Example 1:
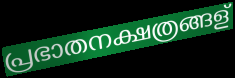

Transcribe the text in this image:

പ്രഭാതനക്ഷത്രങ്ങള്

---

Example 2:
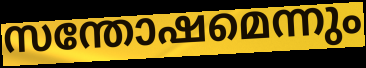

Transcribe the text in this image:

സന്തോഷമെന്നും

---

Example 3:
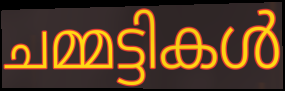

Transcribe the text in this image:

ചമ്മട്ടികൾ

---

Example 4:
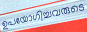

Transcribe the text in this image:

ഉപയോഗിച്ചവരുടെ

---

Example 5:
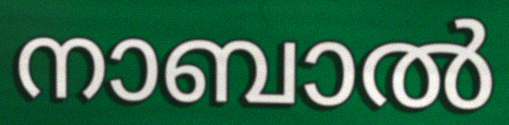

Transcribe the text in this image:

നാബാൽ